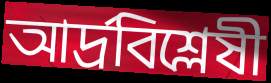
আর্দ্রবিশ্লেষী